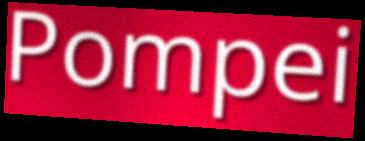
Pompei